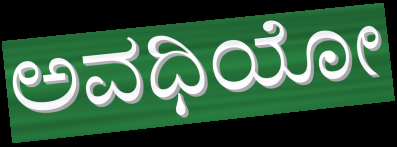
ಅವಧಿಯೋ